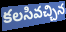
కలసివచ్చిన